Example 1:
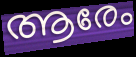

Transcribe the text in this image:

ആരേം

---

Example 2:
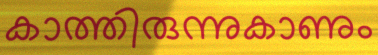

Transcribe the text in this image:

കാത്തിരുന്നുകാണും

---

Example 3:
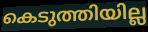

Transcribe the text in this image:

കെടുത്തിയില്ല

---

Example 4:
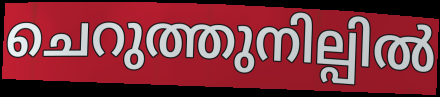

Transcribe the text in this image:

ചെറുത്തുനില്പിൽ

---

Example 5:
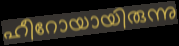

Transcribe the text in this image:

ഹീറോയായിരുന്നു